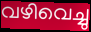
വഴിവെച്ചു